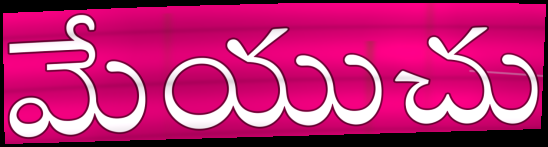
మేయుచు